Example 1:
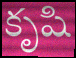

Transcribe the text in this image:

కృషి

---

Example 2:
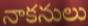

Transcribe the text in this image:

నాకనులు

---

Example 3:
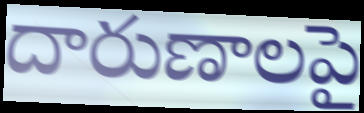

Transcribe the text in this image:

దారుణాలపై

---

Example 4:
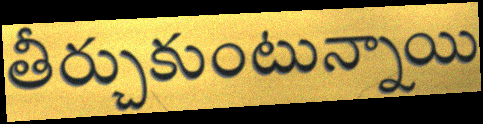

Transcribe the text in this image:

తీర్చుకుంటున్నాయి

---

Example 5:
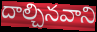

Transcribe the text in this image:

దాల్చినవాని